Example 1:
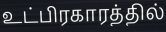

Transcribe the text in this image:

உட்பிரகாரத்தில்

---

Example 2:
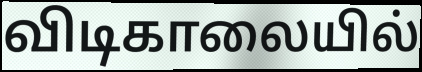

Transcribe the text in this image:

விடிகாலையில்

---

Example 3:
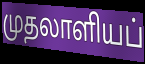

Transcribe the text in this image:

முதலாளியப்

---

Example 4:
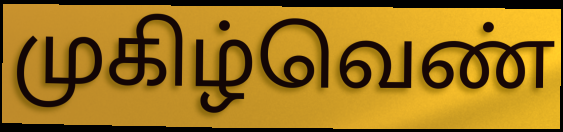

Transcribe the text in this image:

முகிழ்வெண்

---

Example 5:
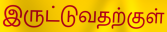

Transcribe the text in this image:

இருட்டுவதற்குள்